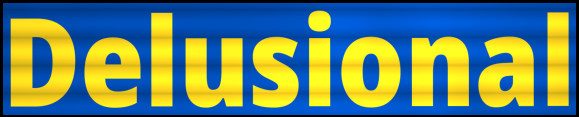
Delusional